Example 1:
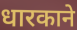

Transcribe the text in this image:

धारकाने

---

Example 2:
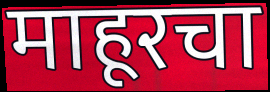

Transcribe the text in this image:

माहूरचा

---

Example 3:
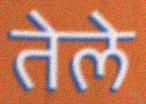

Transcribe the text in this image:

तेले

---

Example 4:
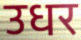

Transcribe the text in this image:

उधर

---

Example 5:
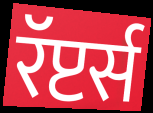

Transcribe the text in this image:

रॅप्टर्स